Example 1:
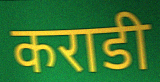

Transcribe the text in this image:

कराडी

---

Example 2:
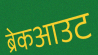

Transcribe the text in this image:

ब्रेकआउट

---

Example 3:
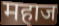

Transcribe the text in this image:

महाज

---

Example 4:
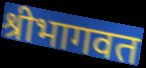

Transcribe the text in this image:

श्रीभागवत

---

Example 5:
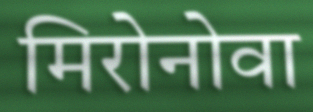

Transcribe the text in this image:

मिरोनोवा